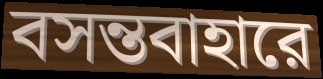
বসন্তবাহারে